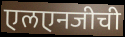
एलएनजीची